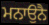
ਮਨਾਉਨੈ